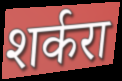
शर्करा